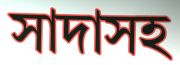
সাদাসহ